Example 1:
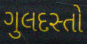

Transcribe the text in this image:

ગુલદસ્તો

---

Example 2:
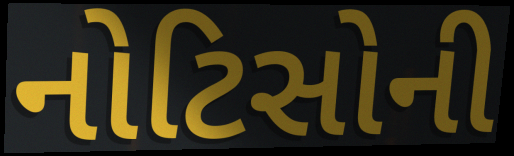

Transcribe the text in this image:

નોટિસોની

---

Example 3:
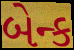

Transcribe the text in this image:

બેન્ક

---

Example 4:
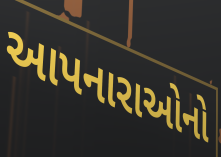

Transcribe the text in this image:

આપનારાઓનો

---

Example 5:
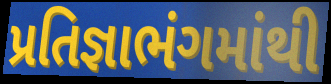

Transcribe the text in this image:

પ્રતિજ્ઞાભંગમાંથી